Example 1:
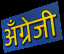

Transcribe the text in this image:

अँग्रेजी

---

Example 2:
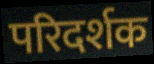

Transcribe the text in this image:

परिदर्शक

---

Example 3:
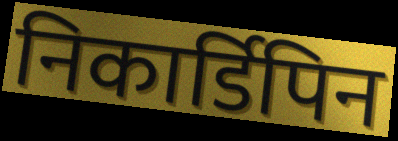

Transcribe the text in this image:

निकार्डिपिन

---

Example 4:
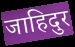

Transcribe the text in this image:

जाहिदुर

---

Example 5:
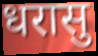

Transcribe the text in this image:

धरासु